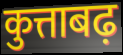
कुत्ताबढ़